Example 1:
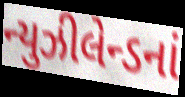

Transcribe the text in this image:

ન્યુઝીલેન્ડનાં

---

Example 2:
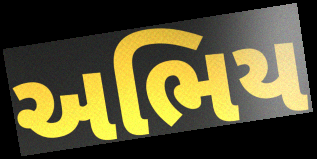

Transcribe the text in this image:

અભિય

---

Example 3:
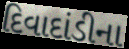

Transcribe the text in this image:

દિવાદાંડીના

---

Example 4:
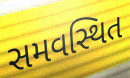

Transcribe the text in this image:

સમવસ્થિત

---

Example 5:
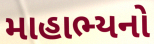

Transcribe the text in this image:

માહાભ્યનો